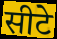
सीटे